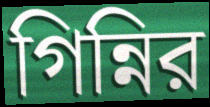
গিন্নির